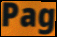
Pag